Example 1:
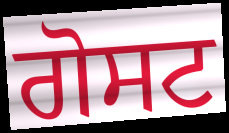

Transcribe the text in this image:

ਗੋਸਟ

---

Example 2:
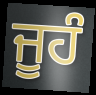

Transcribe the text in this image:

ਜੂਹੰ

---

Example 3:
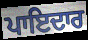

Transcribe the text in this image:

ਪਾਇਦਾਰ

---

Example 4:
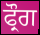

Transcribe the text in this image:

ਫ੍ਰੌਗ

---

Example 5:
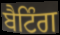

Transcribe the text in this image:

ਬੈਟਿੰਗ